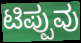
ಟಿಪ್ಪುವು